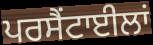
ਪਰਸੈਂਟਾਈਲਾਂ